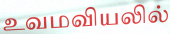
உவமவியலில்